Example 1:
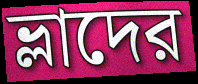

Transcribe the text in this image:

ভ্লাদের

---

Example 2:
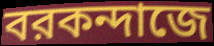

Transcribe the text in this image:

বরকন্দাজে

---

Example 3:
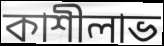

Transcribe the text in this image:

কাশীলাভ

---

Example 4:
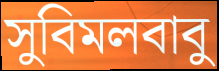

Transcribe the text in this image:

সুবিমলবাবু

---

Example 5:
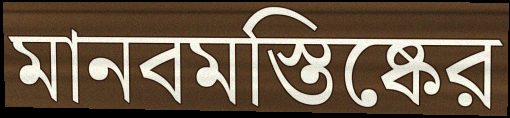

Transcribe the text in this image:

মানবমস্তিষ্কের